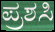
ಪ್ರಶಸಿ